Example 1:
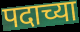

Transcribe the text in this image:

पदाच्या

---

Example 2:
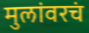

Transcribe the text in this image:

मुलांवरचं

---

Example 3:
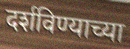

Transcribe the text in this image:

दर्शविण्याच्या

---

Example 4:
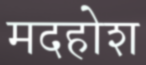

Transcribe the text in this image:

मदहोश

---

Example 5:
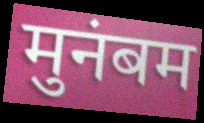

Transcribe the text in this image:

मुनंबम